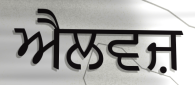
ਐਲਵਜ਼